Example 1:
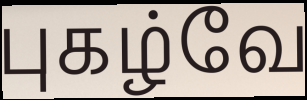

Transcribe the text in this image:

புகழ்வே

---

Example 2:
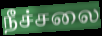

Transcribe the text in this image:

நீச்சலை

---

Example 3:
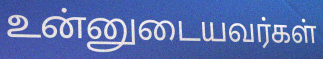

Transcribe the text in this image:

உன்னுடையவர்கள்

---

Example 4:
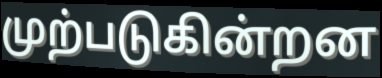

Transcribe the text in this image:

முற்படுகின்றன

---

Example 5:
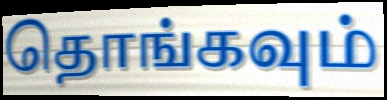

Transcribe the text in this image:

தொங்கவும்